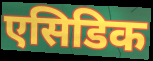
एसिडिक